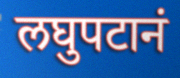
लघुपटानं